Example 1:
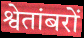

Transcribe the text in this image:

श्वेतांबरों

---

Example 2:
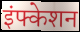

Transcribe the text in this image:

इंफ्केशन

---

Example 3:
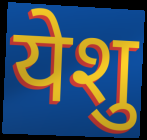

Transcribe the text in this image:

येशु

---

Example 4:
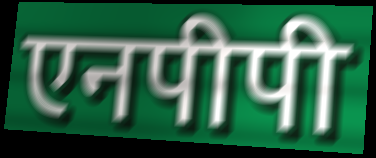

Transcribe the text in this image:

एनपीपी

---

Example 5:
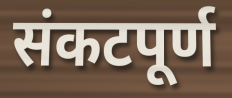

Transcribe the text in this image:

संकटपूर्ण